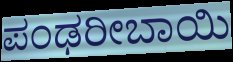
ಪಂಢರೀಬಾಯಿ